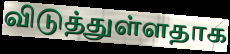
விடுத்துள்ளதாக